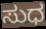
ಸುಧ